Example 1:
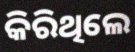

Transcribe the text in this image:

କିରିଥିଲେ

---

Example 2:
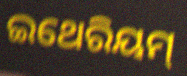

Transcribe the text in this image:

ଇଥେରିୟମ୍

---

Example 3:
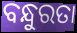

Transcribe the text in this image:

ବନ୍ଧୁରତା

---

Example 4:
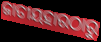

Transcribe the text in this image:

ଜାତୀୟହାରଠାରୁ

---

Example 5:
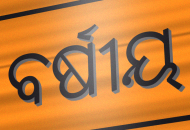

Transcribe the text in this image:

ବର୍ଷୀୟ